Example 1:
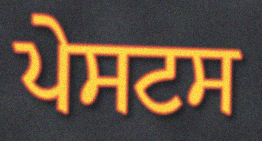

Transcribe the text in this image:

ਪੇਸਟਸ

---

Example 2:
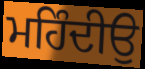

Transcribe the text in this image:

ਮਹਿੰਦੀਉ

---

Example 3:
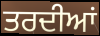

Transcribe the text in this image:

ਤਰਦੀਆਂ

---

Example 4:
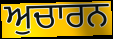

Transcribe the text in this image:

ਅੁਚਾਰਨ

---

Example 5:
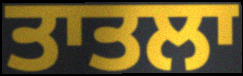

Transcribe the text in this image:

ਤਾਤਲਾ